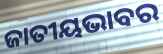
ଜାତୀୟଭାବର